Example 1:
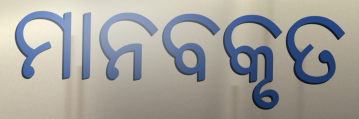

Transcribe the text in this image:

ମାନବକୃତ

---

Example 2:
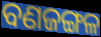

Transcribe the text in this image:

ବଣଜଙ୍ଗଳ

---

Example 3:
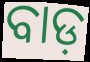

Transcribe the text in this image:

ବାଡ଼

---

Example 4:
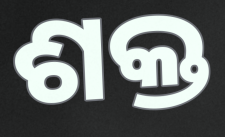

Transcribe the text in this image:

ଶକ୍ତ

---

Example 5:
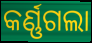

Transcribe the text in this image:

କର୍ଣ୍ଣଗଲା